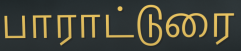
பாராட்டுரை